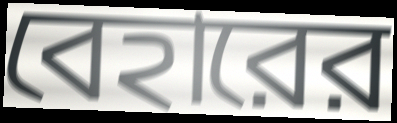
বেহারের